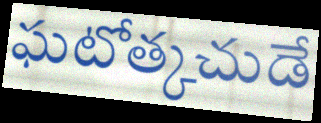
ఘటోత్కచుడే